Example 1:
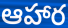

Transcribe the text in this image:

ఆహార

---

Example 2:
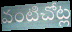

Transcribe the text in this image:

వంటిచోట్ల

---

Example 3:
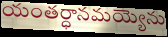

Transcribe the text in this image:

యంతర్ధానమయ్యెను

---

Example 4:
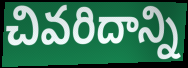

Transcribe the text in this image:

చివరిదాన్ని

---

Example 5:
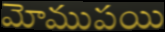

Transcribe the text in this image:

మోముపయి